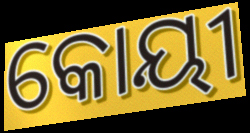
କୋୟୀ